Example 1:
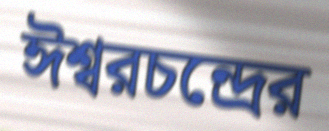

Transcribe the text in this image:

ঈশ্বরচন্দ্রের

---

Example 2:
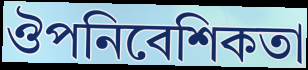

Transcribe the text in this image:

ঔপনিবেশিকতা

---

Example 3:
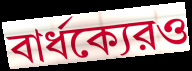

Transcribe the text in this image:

বার্ধক্যেরও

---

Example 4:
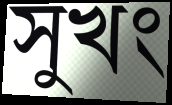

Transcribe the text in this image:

সুখং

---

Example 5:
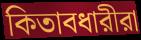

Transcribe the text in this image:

কিতাবধারীরা